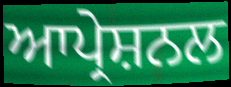
ਆਪ੍ਰੇਸ਼ਨਲ